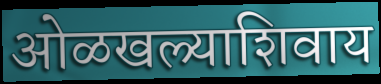
ओळखल्याशिवाय